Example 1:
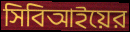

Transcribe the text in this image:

সিবিআইয়ের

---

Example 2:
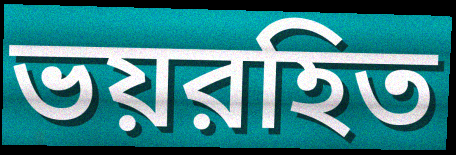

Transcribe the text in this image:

ভয়রহিত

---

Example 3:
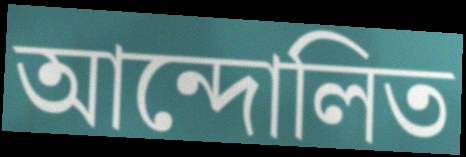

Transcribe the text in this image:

আন্দোলিত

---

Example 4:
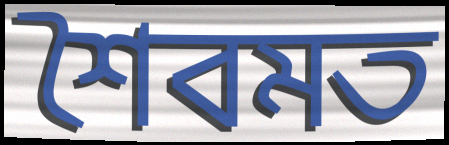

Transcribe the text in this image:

শৈবমত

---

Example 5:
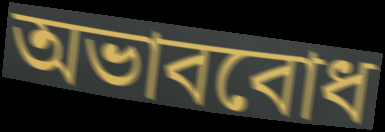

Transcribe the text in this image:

অভাববোধ